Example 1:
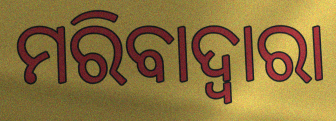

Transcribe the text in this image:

ମରିବାଦ୍ୱାରା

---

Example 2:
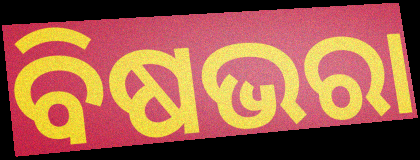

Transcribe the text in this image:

ବିଷଭରା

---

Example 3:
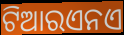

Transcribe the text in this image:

ଟିଆରଏନଏ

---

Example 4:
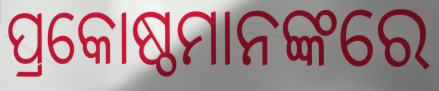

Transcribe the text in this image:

ପ୍ରକୋଷ୍ଠମାନଙ୍କରେ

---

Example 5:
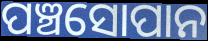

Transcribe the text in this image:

ପଞ୍ଚସୋପାନ